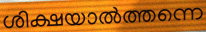
ശിക്ഷയാൽത്തന്നെ